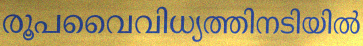
രൂപവൈവിധ്യത്തിനടിയിൽ